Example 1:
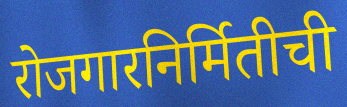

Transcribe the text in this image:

रोजगारनिर्मितीची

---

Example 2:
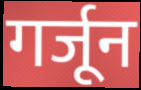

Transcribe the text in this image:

गर्जून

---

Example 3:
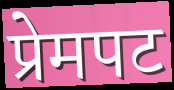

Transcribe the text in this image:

प्रेमपट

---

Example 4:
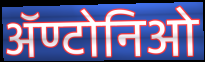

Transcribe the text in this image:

ॲण्टोनिओ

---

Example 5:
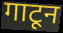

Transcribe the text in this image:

गाटून